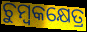
ଚୁମ୍ବକକ୍ଷେତ୍ର